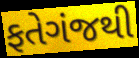
ફતેગંજથી